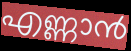
എണ്ണാൻ